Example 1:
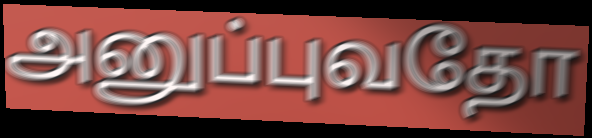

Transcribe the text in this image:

அனுப்புவதோ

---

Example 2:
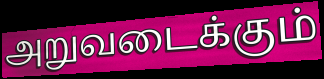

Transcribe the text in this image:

அறுவடைக்கும்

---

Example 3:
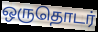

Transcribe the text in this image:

ஒருதொடர்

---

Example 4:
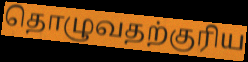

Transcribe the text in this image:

தொழுவதற்குரிய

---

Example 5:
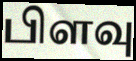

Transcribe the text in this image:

பிளவு